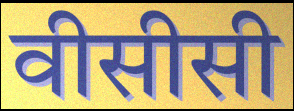
वीसीसी